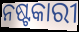
ନଷ୍ଟକାରୀ